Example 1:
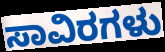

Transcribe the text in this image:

ಸಾವಿರಗಳು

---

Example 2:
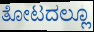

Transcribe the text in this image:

ತೋಟದಲ್ಲೂ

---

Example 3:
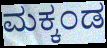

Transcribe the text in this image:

ಮಕ್ಕಂಡ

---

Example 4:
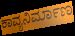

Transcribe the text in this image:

ಕಾವ್ಯನಿರ್ಮಾಣ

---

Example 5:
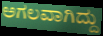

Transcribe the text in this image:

ಅಗಲವಾಗಿದ್ದು